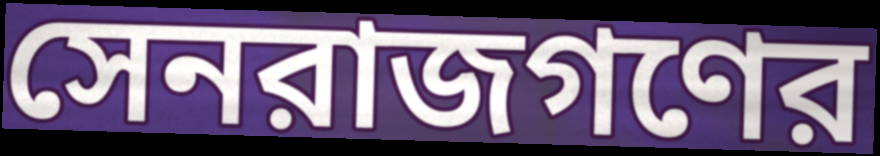
সেনরাজগণের